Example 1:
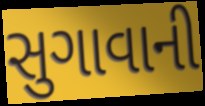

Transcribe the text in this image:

સુગાવાની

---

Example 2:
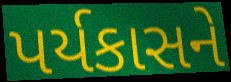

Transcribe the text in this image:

પર્યકાસને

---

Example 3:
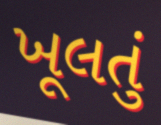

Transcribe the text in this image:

ખૂલતું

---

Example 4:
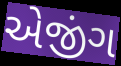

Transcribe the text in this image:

એજીંગ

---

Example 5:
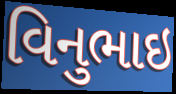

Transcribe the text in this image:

વિનુભાઇ